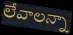
లేవాలన్నా